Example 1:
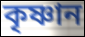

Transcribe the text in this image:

কৃষ্ণান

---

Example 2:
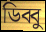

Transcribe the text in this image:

ডিব্বু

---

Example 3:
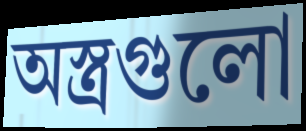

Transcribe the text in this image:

অস্ত্রগুলো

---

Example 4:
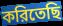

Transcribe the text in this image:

করিতেছি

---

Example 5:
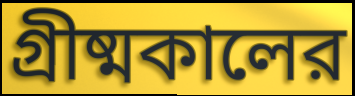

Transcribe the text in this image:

গ্রীষ্মকালের